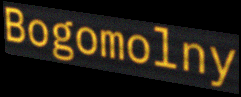
Bogomolny